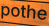
pothe